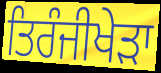
ਤਿਰੰਜੀਖੇੜਾ